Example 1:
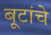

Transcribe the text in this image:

बूटांचे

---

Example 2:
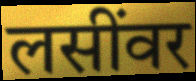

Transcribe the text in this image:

लसींवर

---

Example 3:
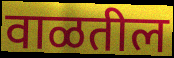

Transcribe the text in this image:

वाळतील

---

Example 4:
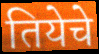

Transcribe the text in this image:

तियेचे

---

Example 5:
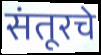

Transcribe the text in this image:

संतूरचे